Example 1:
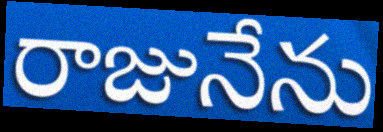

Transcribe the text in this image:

రాజునేను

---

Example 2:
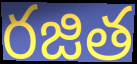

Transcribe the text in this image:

రజిత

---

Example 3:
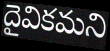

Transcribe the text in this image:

దైవికమని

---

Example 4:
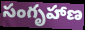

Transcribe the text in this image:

సంగృహాణ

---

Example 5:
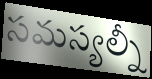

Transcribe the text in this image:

సమస్యల్నీ